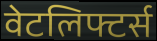
वेटलिफ्टर्स